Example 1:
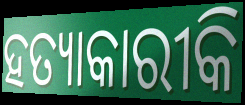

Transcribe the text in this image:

ହତ୍ୟାକାରୀକି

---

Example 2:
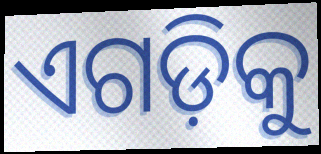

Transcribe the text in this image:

ଏଗଡ଼ିକୁ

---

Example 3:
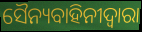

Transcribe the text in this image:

ସୈନ୍ୟବାହିନୀଦ୍ୱାରା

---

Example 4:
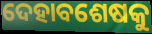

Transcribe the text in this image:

ଦେହାବଶେଷକୁ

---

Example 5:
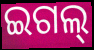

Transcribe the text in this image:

ଇଗଲ୍